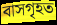
বাসগৃহত